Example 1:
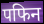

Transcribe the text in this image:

पफिन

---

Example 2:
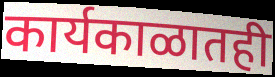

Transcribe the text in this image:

कार्यकाळातही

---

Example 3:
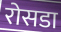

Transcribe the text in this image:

रोसडा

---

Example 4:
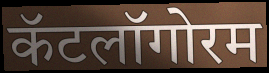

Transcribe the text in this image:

कॅटलॉगोरम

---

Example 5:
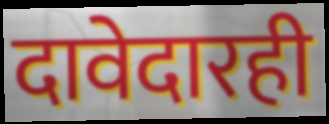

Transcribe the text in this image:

दावेदारही